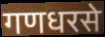
गणधरसे